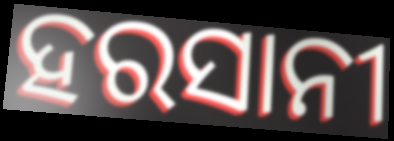
ହରସାନୀ